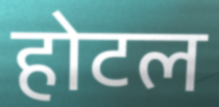
होटल